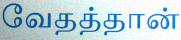
வேதத்தான்